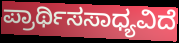
ಪ್ರಾರ್ಥಿಸಸಾಧ್ಯವಿದೆ